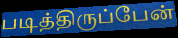
படித்திருப்பேன்